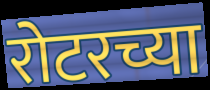
रोटरच्या